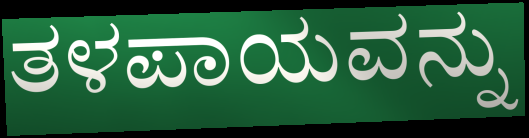
ತಳಪಾಯವನ್ನು